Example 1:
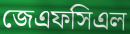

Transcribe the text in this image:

জেএফসিএল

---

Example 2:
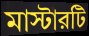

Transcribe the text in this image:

মাস্টারটি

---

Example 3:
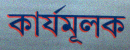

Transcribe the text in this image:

কার্যমূলক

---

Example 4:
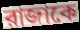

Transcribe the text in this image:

রাজাকে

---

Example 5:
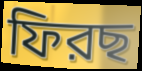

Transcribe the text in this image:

ফিরছ